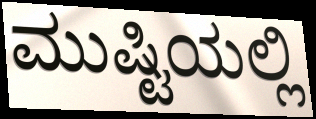
ಮುಷ್ಟಿಯಲ್ಲಿ